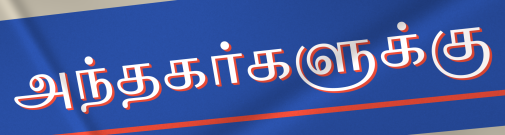
அந்தகர்களுக்கு